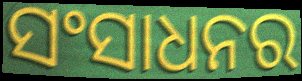
ସଂସାଧନର